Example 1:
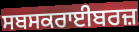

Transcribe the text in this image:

ਸਬਸਕਰਾਈਬਰਜ਼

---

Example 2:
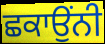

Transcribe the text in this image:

ਛਕਾਉਂਨੀ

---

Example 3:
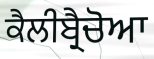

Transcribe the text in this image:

ਕੈਲੀਬ੍ਰੈਚੋਆ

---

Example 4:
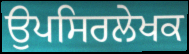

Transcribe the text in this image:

ਉਪਸਿਰਲੇਖਕ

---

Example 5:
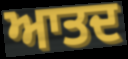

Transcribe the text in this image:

ਆਤਦ